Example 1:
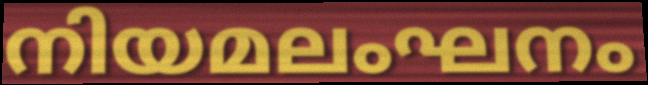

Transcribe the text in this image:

നിയമലംഘനം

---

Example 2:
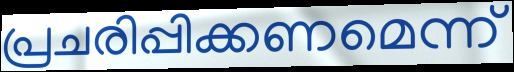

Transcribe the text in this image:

പ്രചരിപ്പിക്കണമെന്ന്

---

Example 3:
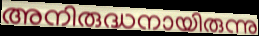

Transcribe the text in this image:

അനിരുദ്ധനായിരുന്നു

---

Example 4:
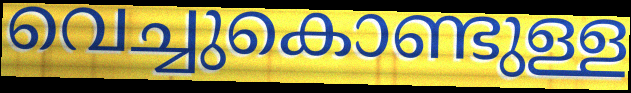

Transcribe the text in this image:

വെച്ചുകൊണ്ടുള്ള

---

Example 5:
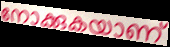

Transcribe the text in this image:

നോക്കുകയാണ്